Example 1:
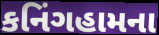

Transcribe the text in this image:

કનિંગહામના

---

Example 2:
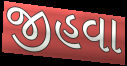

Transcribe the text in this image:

જીહવા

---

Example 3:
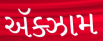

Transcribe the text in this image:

ઍક્ઝામ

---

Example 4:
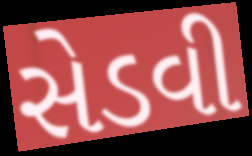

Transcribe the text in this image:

સેડવી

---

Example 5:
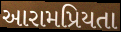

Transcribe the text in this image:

આરામપ્રિયતા